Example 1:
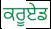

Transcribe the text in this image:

ਕਰੂਏਡ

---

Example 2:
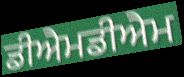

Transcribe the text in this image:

ਡੀਐਮਡੀਐਮ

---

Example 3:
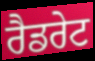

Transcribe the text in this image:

ਰੈਡਰੇਟ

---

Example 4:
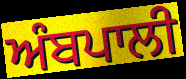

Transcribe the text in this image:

ਅੰਬਪਾਲੀ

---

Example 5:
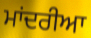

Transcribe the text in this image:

ਮਾਂਦਰੀਆ